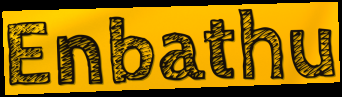
Enbathu